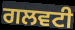
ਗਲਵਟੀ